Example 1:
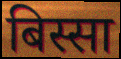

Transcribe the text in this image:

बिस्सा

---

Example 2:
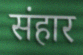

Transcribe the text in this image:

संहार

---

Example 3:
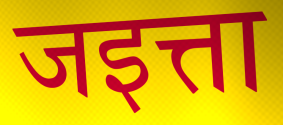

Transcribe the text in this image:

जइत्ता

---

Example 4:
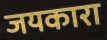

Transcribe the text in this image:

जयकारा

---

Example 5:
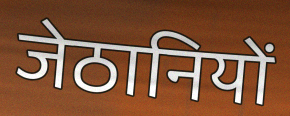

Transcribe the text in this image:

जेठानियों